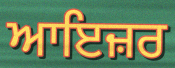
ਆਇਜ਼ਰ